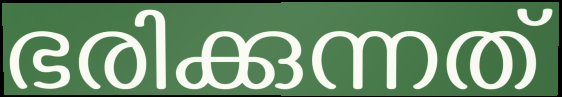
ഭരിക്കുന്നത്